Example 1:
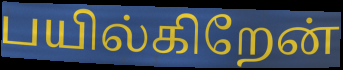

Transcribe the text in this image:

பயில்கிறேன்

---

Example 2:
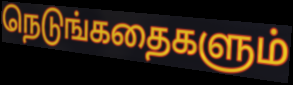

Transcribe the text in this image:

நெடுங்கதைகளும்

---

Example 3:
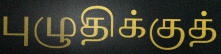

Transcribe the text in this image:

புழுதிக்குத்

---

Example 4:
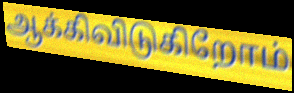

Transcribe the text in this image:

ஆக்கிவிடுகிறோம்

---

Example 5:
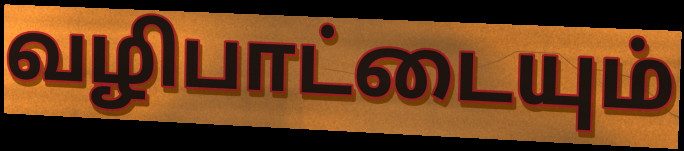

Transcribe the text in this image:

வழிபாட்டையும்